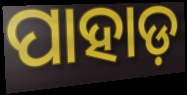
ପାହାଡ଼